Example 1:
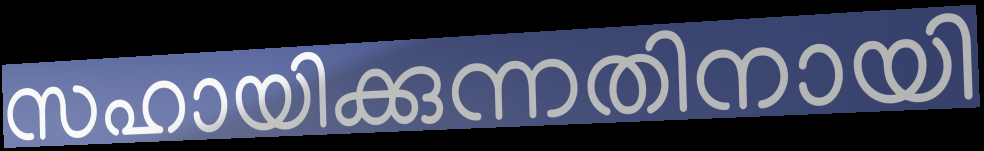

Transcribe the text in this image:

സഹായിക്കുന്നതിനായി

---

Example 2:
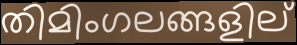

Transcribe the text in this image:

തിമിംഗലങ്ങളില്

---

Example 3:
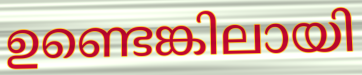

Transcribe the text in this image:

ഉണ്ടെങ്കിലായി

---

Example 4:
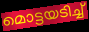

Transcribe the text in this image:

മൊട്ടയടിച്ച്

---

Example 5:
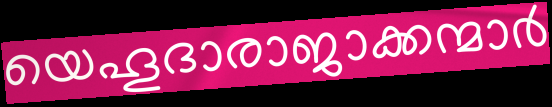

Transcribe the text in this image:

യെഹൂദാരാജാക്കന്മാർ